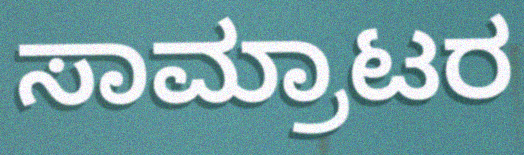
ಸಾಮ್ರಾಟರ